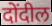
दोंदील